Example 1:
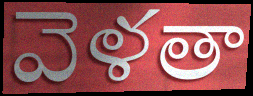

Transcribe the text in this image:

వెళతా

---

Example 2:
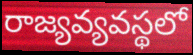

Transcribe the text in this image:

రాజ్యవ్యవస్థలో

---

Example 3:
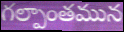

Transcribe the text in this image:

గల్పాంతమున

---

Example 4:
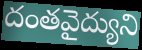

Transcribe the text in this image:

దంతవైద్యుని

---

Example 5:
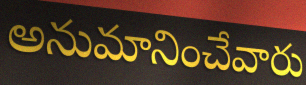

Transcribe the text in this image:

అనుమానించేవారు